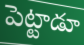
పెట్టాడూ